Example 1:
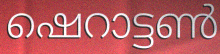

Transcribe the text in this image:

ഷെറാട്ടൺ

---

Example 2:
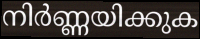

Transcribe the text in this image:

നിർണ്ണയിക്കുക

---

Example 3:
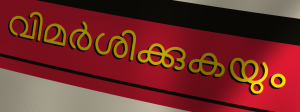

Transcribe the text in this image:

വിമർശിക്കുകയും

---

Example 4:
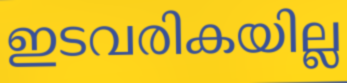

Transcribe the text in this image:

ഇടവരികയില്ല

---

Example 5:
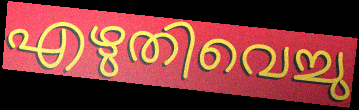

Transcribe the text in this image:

എഴുതിവെച്ചു